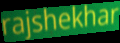
rajshekhar